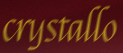
crystallo